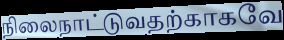
நிலைநாட்டுவதற்காகவே